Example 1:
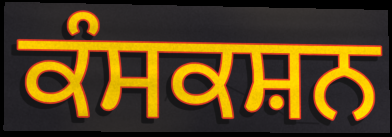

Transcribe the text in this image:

ਕੰਸਕਸ਼ਨ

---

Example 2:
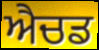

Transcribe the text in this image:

ਐਚਡ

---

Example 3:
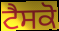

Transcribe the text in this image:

ਟੈਸਕੋ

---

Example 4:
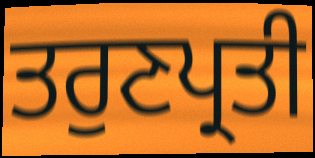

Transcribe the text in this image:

ਤਰੁਣਪ੍ਰਤੀ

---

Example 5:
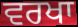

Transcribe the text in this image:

ਵਰਖਾ